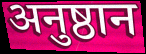
अनुष्ठान